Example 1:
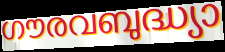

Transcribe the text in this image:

ഗൗരവബുദ്ധ്യാ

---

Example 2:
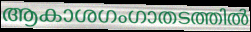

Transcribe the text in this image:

ആകാശഗംഗാതടത്തിൽ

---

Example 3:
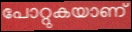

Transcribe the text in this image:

പോറ്റുകയാണ്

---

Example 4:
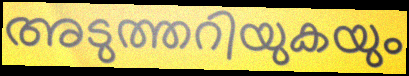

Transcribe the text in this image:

അടുത്തറിയുകയും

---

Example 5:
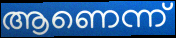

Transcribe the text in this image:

ആണെന്ന്